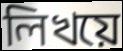
লিখয়ে